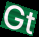
Gt